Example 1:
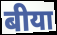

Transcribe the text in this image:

बीया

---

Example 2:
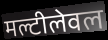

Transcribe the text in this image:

मल्टीलेवल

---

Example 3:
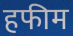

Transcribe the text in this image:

हफीम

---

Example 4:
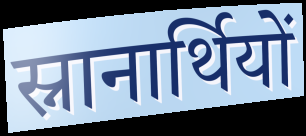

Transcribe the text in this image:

स्नानार्थियों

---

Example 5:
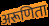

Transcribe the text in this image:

अरूणिता